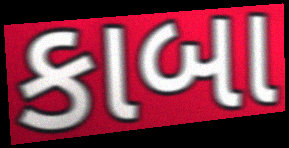
કાબા